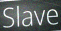
Slave